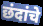
छंदांचे